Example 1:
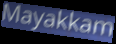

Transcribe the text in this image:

Mayakkam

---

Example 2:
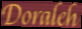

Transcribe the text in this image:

Doraleh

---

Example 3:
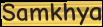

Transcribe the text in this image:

Samkhya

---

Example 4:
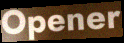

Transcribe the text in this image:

Opener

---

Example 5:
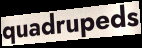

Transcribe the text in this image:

quadrupeds